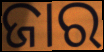
ଜାର